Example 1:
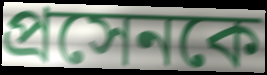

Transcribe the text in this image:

প্রসেনকে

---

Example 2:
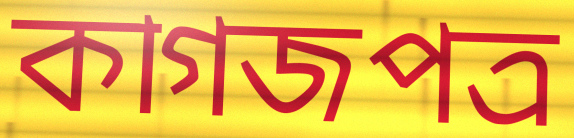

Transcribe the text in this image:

কাগজপত্র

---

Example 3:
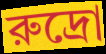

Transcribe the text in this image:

রুদ্রো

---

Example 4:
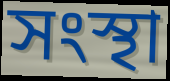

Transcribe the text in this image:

সংস্থা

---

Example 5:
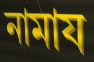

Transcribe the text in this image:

নামায